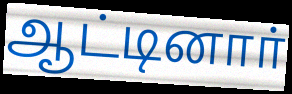
ஆட்டினார்